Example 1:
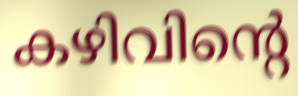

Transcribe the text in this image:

കഴിവിന്റെ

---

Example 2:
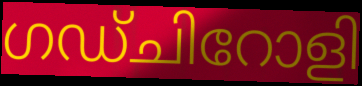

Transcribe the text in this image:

ഗഡ്ചിറോളി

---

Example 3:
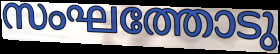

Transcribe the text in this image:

സംഘത്തോടു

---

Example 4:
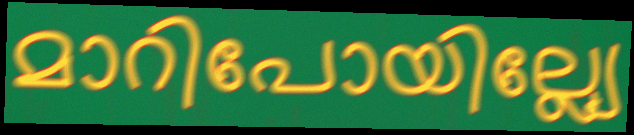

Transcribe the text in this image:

മാറിപോയില്ല്യേ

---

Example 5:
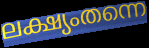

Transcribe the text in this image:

ലക്ഷ്യംതന്നെ